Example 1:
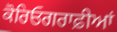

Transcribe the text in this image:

ਕੋਰਿਓਗਰਾਫ਼ੀਆਂ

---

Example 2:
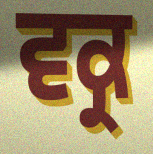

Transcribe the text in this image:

ਵਕ੍ਰ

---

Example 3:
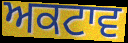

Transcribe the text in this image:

ਅਕਟਾਵ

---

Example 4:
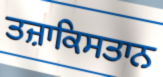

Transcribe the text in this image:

ਤਜ਼ਾਕਿਸਤਾਨ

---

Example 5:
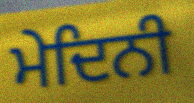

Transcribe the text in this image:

ਮੇਦਿਨੀ